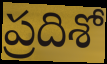
ప్రదిశో